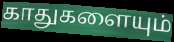
காதுகளையும்